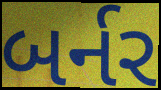
બર્નર